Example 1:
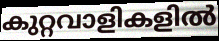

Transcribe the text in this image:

കുറ്റവാളികളിൽ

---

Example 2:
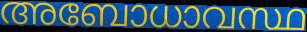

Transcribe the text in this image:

അബോധാവസ്ഥ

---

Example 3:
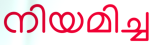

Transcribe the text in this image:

നിയമിച്ച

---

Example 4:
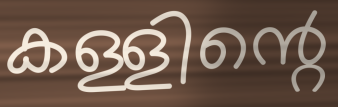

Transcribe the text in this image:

കള്ളിന്റെ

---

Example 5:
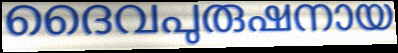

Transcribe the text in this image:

ദൈവപുരുഷനായ